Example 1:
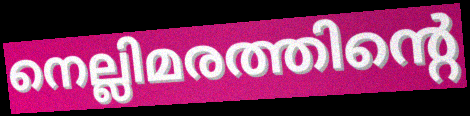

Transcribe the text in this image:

നെല്ലിമരത്തിന്റെ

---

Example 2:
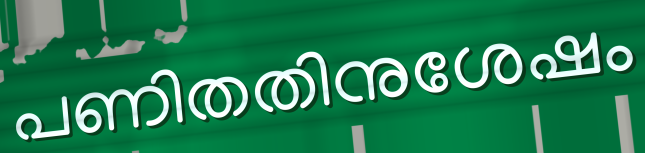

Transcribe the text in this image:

പണിതതിനുശേഷം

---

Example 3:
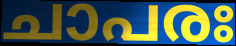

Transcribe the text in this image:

ചാപരഃ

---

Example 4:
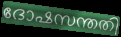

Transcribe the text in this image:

ദോഷസന്തതി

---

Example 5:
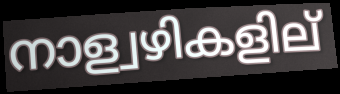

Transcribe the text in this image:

നാള്വഴികളില്